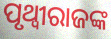
ପୃଥ୍ୱୀରାଜଙ୍କ